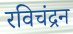
रविचंद्रन